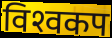
विश्वकप